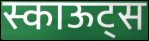
स्काऊट्स